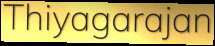
Thiyagarajan